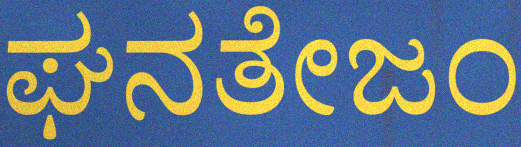
ಘನತೇಜಂ